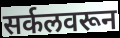
सर्कलवरून